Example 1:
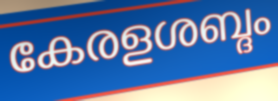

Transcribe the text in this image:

കേരളശബ്ദം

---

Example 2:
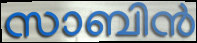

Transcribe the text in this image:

സാബിൻ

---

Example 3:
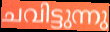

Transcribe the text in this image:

ചവിട്ടുന്നു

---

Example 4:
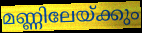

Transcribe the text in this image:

മണ്ണിലേയ്ക്കും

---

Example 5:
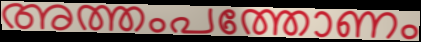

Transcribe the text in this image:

അത്തംപത്തോണം